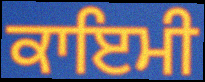
ਕਾਇਮੀ